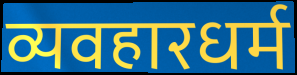
व्यवहारधर्म